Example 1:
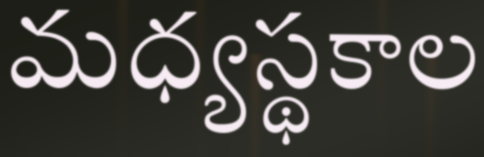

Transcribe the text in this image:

మధ్యస్థకాల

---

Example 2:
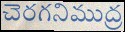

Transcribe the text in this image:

చెరగనిముద్ర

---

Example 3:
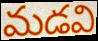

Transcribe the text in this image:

మడవి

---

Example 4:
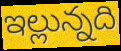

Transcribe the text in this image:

ఇల్లున్నది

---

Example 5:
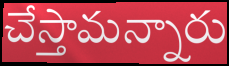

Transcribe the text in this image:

చేస్తామన్నారు